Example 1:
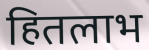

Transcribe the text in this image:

हितलाभ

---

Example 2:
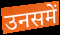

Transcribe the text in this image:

उनसमें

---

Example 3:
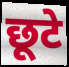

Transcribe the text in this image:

छूटे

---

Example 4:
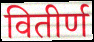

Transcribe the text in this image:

वितीर्ण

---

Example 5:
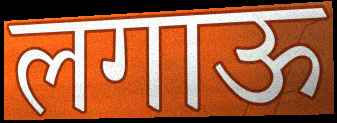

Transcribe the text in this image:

लगाऊ